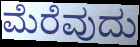
ಮೆರೆವುದು